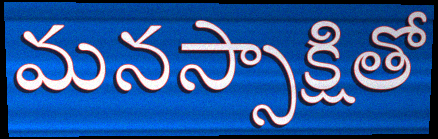
మనస్సాక్షితో